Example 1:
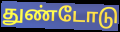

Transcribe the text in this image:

துண்டோடு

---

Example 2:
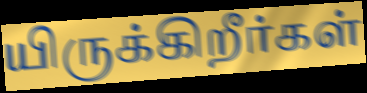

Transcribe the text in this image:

யிருக்கிறீர்கள்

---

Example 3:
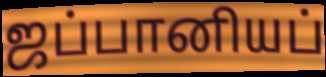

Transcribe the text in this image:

ஜப்பானியப்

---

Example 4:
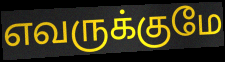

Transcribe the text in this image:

எவருக்குமே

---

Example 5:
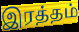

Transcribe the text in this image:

இரத்தம்